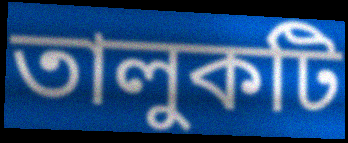
তালুকটি